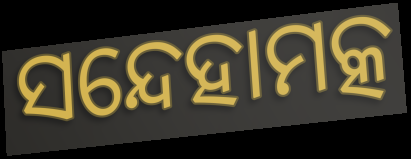
ସନ୍ଦେହାମତ୍କ